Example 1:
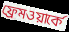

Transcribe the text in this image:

ফ্রেমওয়ার্কে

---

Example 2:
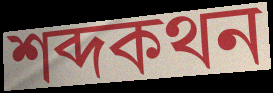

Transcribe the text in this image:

শব্দকথন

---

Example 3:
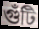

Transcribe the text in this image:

গুঁটি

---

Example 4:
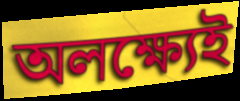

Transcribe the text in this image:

অলক্ষ্যেই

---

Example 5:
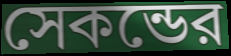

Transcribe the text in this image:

সেকন্ডের